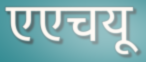
एएचयू